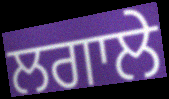
ਲਗਾਲੇ